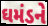
ઘમંડને